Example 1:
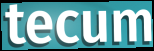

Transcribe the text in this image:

tecum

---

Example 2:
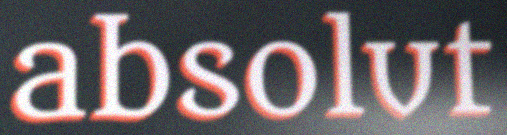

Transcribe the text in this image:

absolut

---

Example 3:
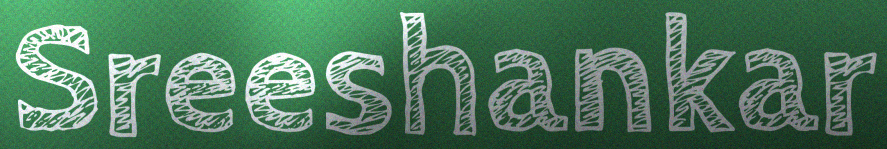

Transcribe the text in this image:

Sreeshankar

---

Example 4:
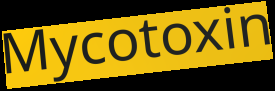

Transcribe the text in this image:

Mycotoxin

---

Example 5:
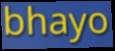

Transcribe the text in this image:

bhayo